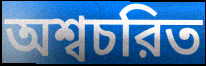
অশ্বচরিত